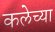
कलेच्या